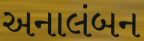
અનાલંબન